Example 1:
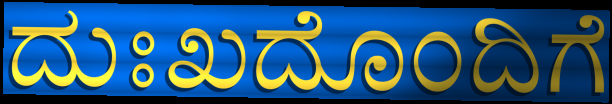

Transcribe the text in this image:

ದುಃಖದೊಂದಿಗೆ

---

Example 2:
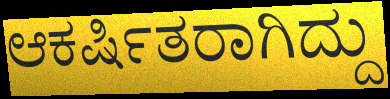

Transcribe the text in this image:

ಆಕರ್ಷಿತರಾಗಿದ್ದು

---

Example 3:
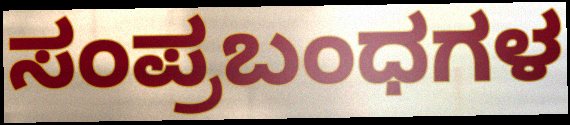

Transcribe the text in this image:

ಸಂಪ್ರಬಂಧಗಳ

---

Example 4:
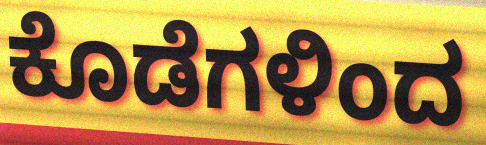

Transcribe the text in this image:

ಕೊಡೆಗಳಿಂದ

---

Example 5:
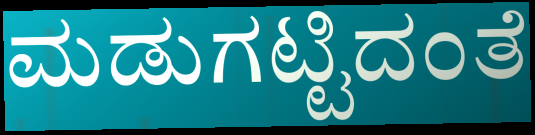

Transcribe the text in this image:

ಮಡುಗಟ್ಟಿದಂತೆ